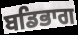
ਬਡਿਭਾਗ